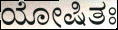
ಯೋಷಿತಃ